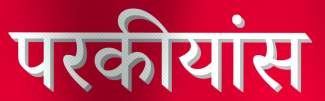
परकीयांस